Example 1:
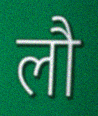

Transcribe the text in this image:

लौ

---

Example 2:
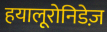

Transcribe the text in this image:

हयालूरोनिडेज़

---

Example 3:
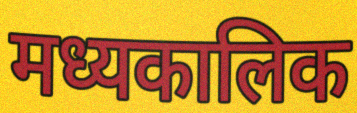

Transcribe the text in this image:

मध्यकालिक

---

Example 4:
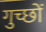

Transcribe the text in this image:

गुच्छों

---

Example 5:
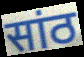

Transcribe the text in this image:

सांठ